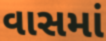
વાસમાં